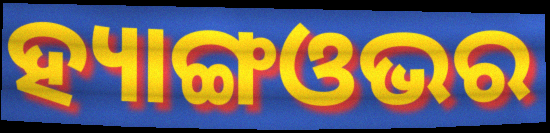
ହ୍ୟାଙ୍ଗଓଭର